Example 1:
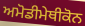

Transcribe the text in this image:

ਅਮੋਡੀਮੇਥੀਕੋਨ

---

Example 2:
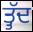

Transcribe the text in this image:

ਤ੍ਤੱਦ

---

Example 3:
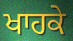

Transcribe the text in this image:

ਖਾਹਕੇ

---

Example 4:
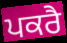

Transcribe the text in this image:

ਪਕਰੈ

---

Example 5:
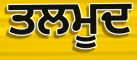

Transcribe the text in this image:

ਤਲਮੂਦ